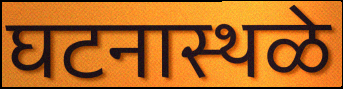
घटनास्थळे